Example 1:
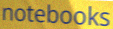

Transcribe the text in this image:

notebooks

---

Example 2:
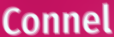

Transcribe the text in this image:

Connel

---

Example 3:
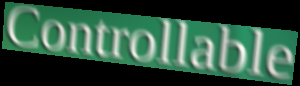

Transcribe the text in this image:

Controllable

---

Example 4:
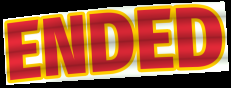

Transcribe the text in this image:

ENDED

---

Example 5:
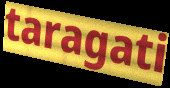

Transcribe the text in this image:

taragati